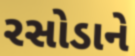
રસોડાને